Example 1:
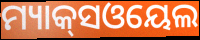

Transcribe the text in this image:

ମ୍ୟାକ୍‌ସଓୟେଲ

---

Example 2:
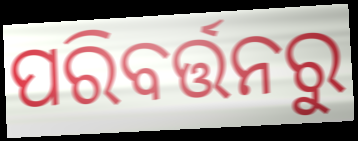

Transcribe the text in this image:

ପରିବର୍ତ୍ତନରୁ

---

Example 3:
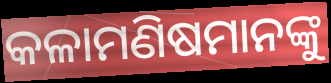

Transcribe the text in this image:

କଳାମଣିଷମାନଙ୍କୁ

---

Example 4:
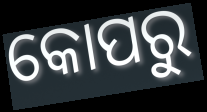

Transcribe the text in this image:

କୋପରୁ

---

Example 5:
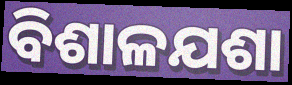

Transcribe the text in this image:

ବିଶାଳଯଶା